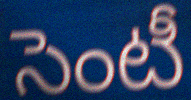
సెంటీ